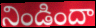
నిండిందా